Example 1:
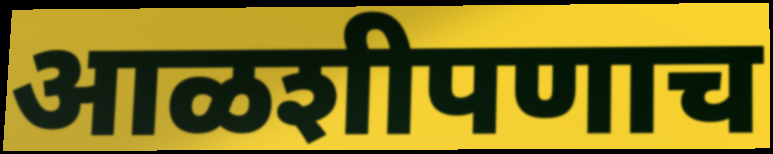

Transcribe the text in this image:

आळशीपणाच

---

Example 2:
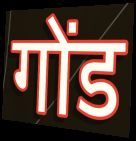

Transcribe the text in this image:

गोंड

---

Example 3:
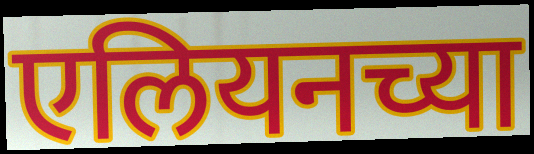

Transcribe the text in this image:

एलियनच्या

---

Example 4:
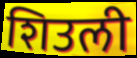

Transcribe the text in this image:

शिउली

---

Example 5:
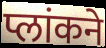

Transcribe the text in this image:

प्लांकने